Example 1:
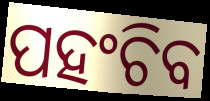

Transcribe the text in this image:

ପହଂଚିବ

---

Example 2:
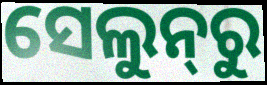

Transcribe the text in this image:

ସେଲୁନ୍‌ରୁ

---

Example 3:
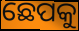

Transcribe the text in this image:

ଛେପକୁ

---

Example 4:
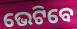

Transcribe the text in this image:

ଭେଟିବେ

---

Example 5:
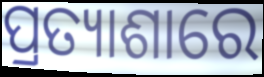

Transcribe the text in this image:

ପ୍ରତ୍ୟାଶାରେ